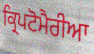
ਕ੍ਰਿਪਟੋਮੈਰੀਆ